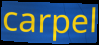
carpel